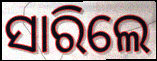
ସାରିଲେ